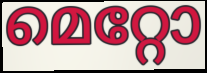
മെറ്റോ